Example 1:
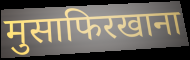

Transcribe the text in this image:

मुसाफिरखाना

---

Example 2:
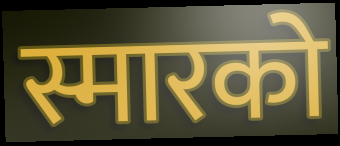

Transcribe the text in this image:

स्मारको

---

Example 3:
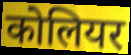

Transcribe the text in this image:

कोलियर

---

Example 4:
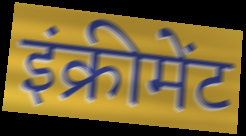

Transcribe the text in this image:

इंक्रीमेंट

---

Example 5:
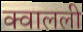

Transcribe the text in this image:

क्वालली